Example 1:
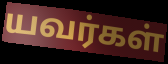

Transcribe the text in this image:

யவர்கள்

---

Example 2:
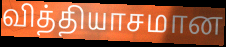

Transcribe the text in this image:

வித்தியாசமான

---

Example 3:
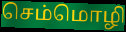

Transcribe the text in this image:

செம்மொழி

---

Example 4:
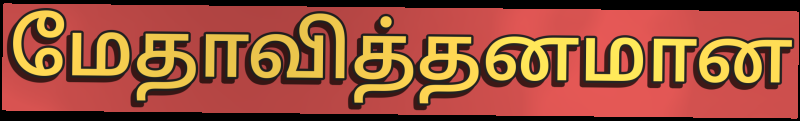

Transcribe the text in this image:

மேதாவித்தனமான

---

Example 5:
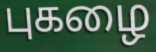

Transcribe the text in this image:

புகழை